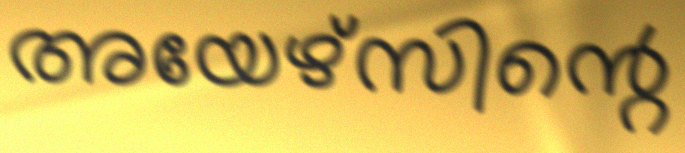
അയേഴ്സിന്റെ